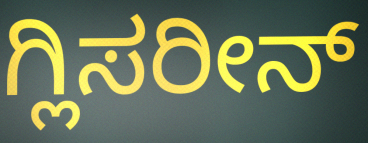
ಗ್ಲಿಸರೀನ್